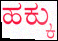
ಹಕ್ಕು